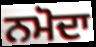
ਨਮੋਦਾ